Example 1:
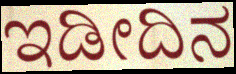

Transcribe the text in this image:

ಇಡೀದಿನ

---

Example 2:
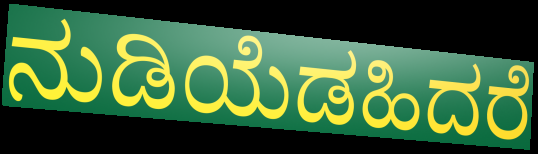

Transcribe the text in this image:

ನುಡಿಯೆಡಹಿದರೆ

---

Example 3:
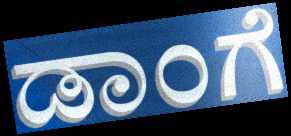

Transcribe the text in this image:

ಡಾಂಗೆ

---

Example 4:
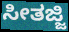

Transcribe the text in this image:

ಸೀತಜ್ಜಿ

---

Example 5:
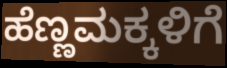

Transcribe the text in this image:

ಹೆಣ್ಣಮಕ್ಕಳಿಗೆ